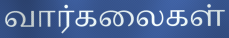
வார்கலைகள்